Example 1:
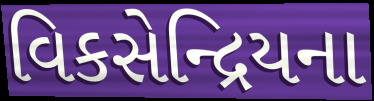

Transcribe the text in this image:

વિકસેન્દ્રિયના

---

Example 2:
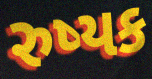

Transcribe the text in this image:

રુષ્યક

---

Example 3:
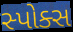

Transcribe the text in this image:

સ્પોક્સ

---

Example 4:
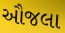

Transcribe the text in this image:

ઔજલા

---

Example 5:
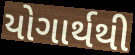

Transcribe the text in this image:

યોગાર્થથી